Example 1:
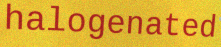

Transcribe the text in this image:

halogenated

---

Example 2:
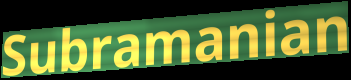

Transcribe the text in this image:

Subramanian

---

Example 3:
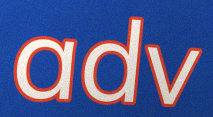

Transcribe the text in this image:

adv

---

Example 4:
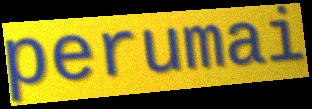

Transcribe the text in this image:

perumai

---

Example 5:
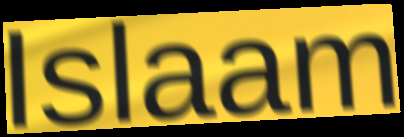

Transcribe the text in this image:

Islaam